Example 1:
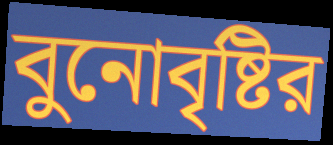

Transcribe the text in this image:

বুনোবৃষ্টির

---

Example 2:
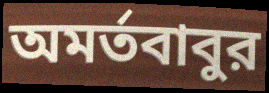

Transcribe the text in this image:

অমর্তবাবুর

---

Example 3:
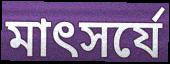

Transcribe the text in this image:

মাৎসর্যে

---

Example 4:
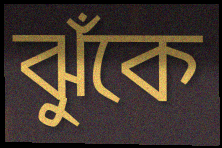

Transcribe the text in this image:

ঝুঁকে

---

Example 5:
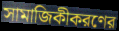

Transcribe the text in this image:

সামাজিকীকরণের